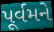
પૂર્વમને